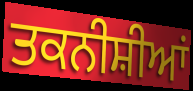
ਤਕਨੀਸ਼ੀਆਂ